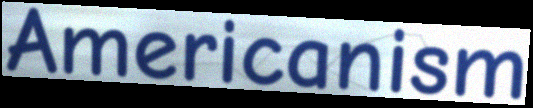
Americanism